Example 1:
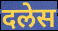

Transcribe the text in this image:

दलेस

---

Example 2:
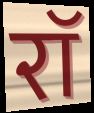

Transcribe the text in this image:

रॉ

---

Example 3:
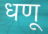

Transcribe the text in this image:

धणू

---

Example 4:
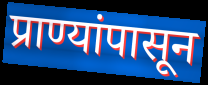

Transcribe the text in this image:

प्राण्यांपासून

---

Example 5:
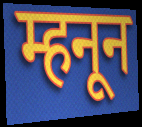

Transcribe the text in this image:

म्हनून